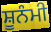
ਸ਼ੂਨੰਮੀ